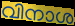
വിനാശ